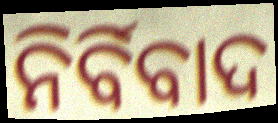
ନିର୍ବିବାଦ